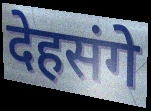
देहसंगे